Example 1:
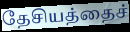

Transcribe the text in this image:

தேசியத்தைச்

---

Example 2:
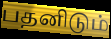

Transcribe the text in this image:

பதனிடும்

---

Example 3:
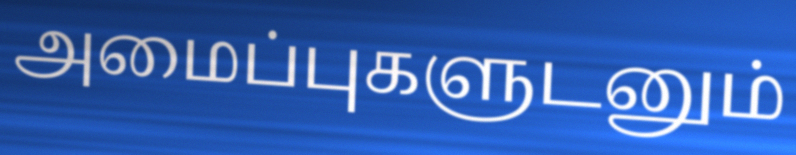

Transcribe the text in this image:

அமைப்புகளுடனும்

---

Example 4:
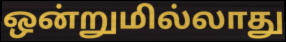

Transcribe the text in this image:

ஒன்றுமில்லாது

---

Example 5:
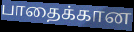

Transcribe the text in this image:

பாதைக்கான